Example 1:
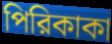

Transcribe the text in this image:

পিরিকাকা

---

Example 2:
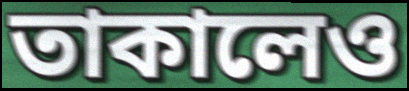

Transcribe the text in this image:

তাকালেও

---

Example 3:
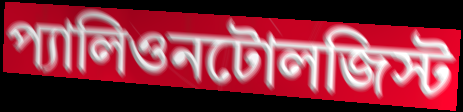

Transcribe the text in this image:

প্যালিওনটোলজিস্ট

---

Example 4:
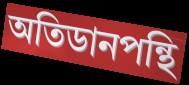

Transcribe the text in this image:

অতিডানপন্থি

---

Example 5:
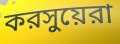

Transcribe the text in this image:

করসুয়েরা